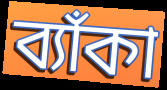
ব্যাঁকা